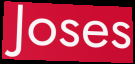
Joses